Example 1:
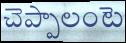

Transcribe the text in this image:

చెప్పాలంటె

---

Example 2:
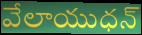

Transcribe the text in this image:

వేలాయుధన్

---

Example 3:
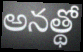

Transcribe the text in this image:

అనత్థో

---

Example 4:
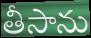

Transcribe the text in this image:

తీసాను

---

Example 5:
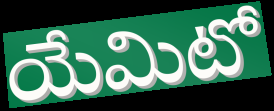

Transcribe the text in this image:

యేమిటో